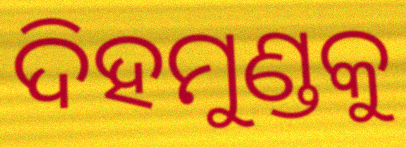
ଦିହମୁଣ୍ଡକୁ